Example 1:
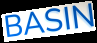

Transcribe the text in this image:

BASIN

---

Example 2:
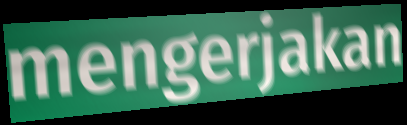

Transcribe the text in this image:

mengerjakan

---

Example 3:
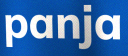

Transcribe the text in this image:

panja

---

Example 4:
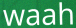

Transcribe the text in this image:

waah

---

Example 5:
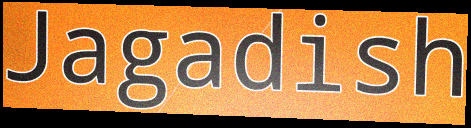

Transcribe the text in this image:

Jagadish